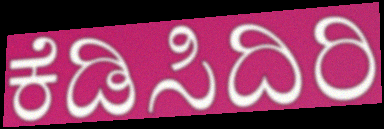
ಕೆಡಿಸಿದಿರಿ